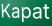
Kapat